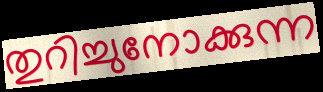
തുറിച്ചുനോക്കുന്ന